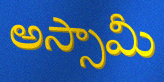
అస్సామీ